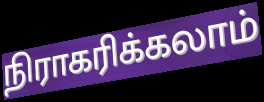
நிராகரிக்கலாம்